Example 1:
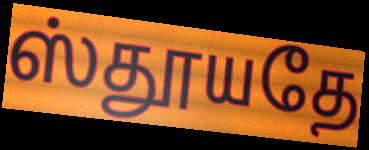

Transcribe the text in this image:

ஸ்தூயதே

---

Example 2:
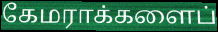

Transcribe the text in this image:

கேமராக்களைப்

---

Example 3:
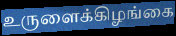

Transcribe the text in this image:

உருளைக்கிழங்கை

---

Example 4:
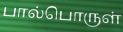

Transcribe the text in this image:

பால்பொருள்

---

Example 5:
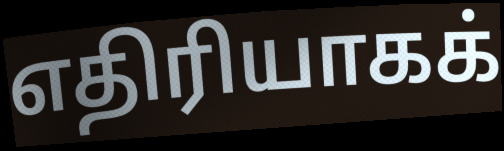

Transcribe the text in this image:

எதிரியாகக்